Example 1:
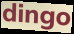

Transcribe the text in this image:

dingo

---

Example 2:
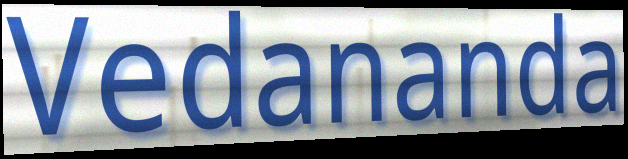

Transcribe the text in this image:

Vedananda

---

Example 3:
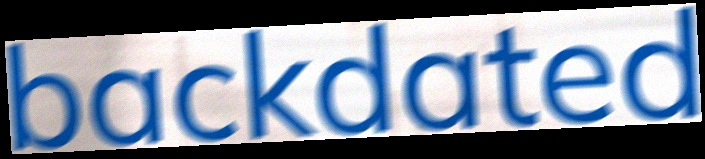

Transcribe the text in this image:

backdated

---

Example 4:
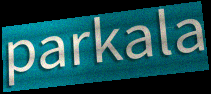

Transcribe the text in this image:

parkala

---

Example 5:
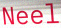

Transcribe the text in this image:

Neel